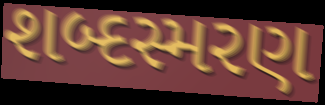
શબ્દસ્મરણ